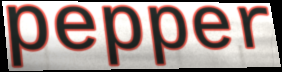
pepper